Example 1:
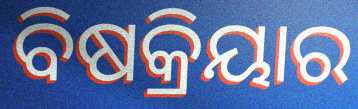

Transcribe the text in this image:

ବିଷକ୍ରିୟାର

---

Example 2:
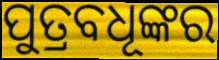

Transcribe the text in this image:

ପୁତ୍ରବଧୂଙ୍କର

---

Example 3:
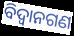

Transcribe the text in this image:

ବିଦ୍ଵାନଗଣ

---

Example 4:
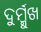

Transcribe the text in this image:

ଦୁର୍ମ୍ମୁଖ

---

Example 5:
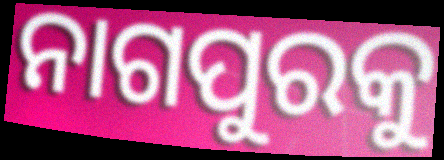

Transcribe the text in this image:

ନାଗପୁରକୁ